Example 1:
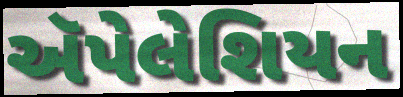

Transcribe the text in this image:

ઍપેલેશિયન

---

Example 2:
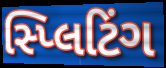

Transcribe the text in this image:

સ્પ્લિટિંગ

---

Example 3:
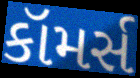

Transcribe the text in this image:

કૉમર્સ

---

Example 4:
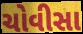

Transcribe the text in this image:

ચોવીસા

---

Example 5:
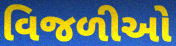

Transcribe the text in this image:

વિજળીઓ